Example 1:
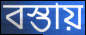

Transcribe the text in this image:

বস্তায়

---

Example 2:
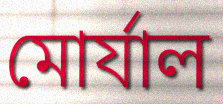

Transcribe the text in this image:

মোর্যাল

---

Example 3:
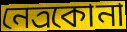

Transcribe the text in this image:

নেত্রকোনা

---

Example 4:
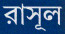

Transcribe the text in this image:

রাসূল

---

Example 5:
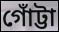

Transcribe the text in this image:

গোঁট্টা